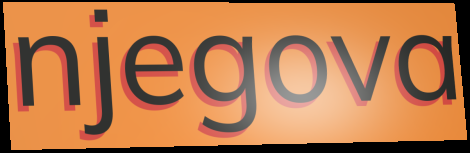
njegova